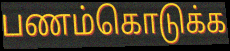
பணம்கொடுக்க